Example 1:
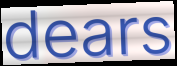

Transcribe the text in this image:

dears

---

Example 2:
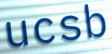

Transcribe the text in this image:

ucsb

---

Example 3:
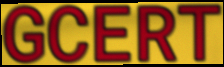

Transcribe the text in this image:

GCERT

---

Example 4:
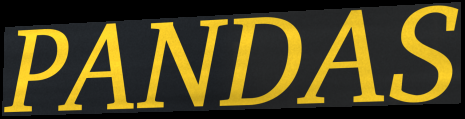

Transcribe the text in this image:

PANDAS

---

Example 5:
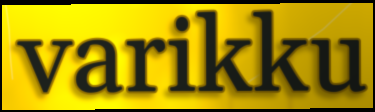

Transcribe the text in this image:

varikku